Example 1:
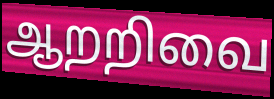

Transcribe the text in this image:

ஆறறிவை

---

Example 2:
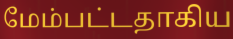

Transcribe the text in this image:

மேம்பட்டதாகிய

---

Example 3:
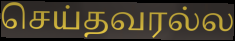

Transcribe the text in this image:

செய்தவரல்ல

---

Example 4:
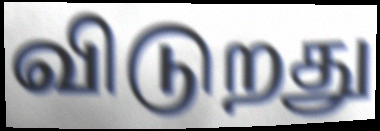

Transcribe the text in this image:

விடுறது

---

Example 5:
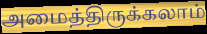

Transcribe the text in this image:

அமைத்திருக்கலாம்